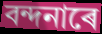
বন্দনাৰে